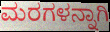
ಮರಗಳನ್ನಾಗಿ